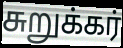
சுறுக்கர்